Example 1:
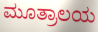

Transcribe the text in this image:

ಮೂತ್ರಾಲಯ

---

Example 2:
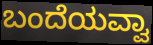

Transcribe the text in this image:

ಬಂದೆಯವ್ವಾ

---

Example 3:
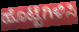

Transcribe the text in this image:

ಹೊಟ್ಟೆಗಿಳಿಸಿ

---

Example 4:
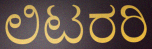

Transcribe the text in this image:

ಲಿಟರರಿ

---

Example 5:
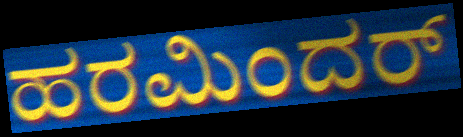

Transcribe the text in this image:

ಹರಮಿಂದರ್